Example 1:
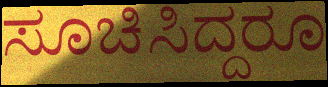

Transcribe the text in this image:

ಸೂಚಿಸಿದ್ದರೂ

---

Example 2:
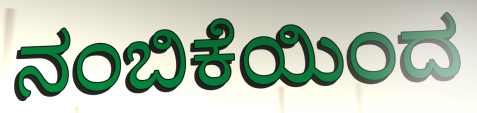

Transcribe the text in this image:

ನಂಬಿಕೆಯಿಂದ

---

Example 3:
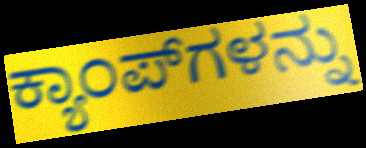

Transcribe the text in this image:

ಕ್ಯಾಂಪ್‍ಗಳನ್ನು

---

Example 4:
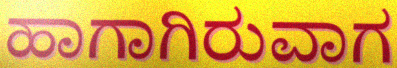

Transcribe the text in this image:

ಹಾಗಾಗಿರುವಾಗ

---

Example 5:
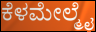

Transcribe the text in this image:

ಕೆಳಮೇಲ್ಮೈ